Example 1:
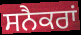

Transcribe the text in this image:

ਸਨੈਕਰਾਂ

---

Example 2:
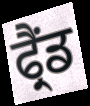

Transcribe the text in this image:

ਫ੍ਰੈਂਡ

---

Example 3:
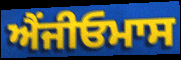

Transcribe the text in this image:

ਐਂਜੀਓਮਾਸ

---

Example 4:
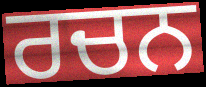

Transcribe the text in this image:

ਰਚਨ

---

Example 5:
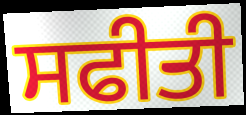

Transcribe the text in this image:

ਸਫੀਤੀ